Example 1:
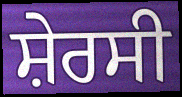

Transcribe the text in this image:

ਸ਼ੇਰਸੀ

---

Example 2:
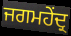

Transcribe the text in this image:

ਜਗਮਹੇਂਦ੍ਰ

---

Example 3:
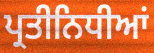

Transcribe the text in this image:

ਪ੍ਰਤੀਨਿਧੀਆਂ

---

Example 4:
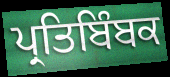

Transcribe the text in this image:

ਪ੍ਰਤਿਬਿੰਬਕ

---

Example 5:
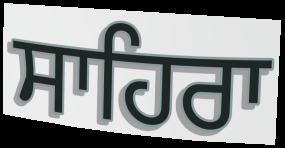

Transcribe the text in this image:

ਸਾਹਿਰਾ